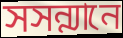
সসন্মানে